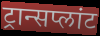
ट्रान्सप्लांट